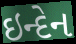
ઇન્દેન